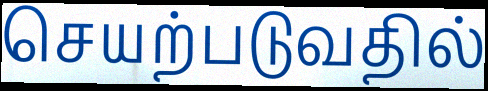
செயற்படுவதில்